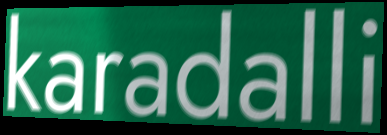
karadalli